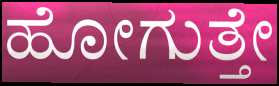
ಹೋಗುತ್ತೇ